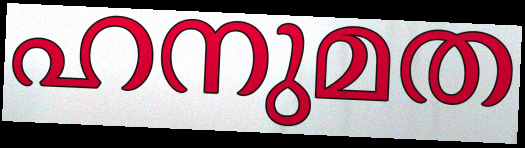
ഹനുമത